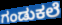
ಗಂಡುಕಲೆ